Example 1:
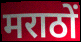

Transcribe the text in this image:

मराठों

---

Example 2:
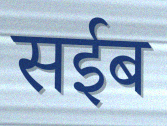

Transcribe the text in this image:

सईब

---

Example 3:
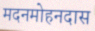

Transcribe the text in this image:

मदनमोहनदास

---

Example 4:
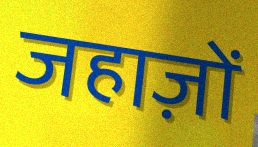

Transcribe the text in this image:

जहाज़ों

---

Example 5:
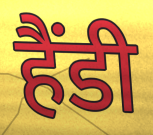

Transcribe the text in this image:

हैंडी